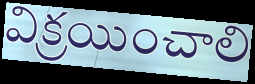
విక్రయించాలి